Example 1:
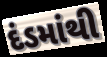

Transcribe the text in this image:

દંડમાંથી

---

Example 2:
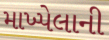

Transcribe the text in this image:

માખ્પેલાની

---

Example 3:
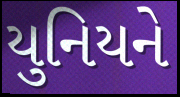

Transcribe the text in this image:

યુનિયને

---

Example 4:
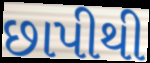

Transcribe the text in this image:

છાપીથી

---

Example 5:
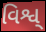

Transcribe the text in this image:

વિશ્વ્